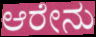
ಆರೇನು